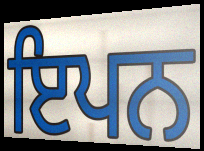
ਇਪਨ